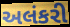
અલંકરી